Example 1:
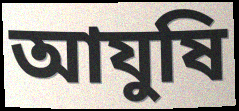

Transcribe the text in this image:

আযুষি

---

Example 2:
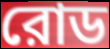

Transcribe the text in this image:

রোড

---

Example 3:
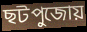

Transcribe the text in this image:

ছটপুজোয়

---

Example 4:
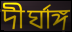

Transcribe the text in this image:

দীর্ঘাঙ্গ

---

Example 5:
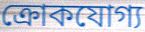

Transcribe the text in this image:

ক্রোকযোগ্য